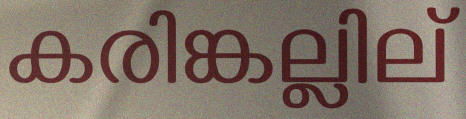
കരിങ്കല്ലില്